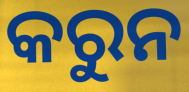
କରୁନ